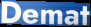
Demat